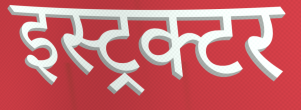
इस्ट्रक्टर